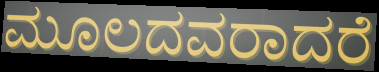
ಮೂಲದವರಾದರೆ